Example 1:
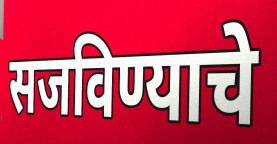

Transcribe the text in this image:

सजविण्याचे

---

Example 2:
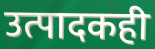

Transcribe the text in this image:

उत्पादकही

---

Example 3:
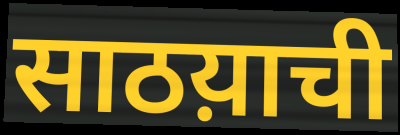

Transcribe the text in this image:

साठय़ाची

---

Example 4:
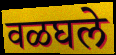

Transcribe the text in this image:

वळघले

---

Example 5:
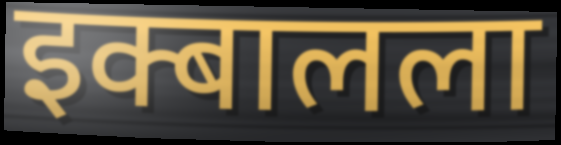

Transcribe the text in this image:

इक्बालला